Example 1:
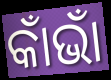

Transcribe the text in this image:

କାଁଭାଁ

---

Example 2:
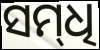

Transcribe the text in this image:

ସମ୍‌ଧି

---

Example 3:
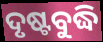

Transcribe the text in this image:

ଦୃଷ୍ଟବୁଦ୍ଧି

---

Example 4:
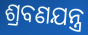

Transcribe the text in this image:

ଶ୍ରବଣଯନ୍ତ୍ର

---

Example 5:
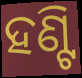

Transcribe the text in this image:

ହଣ୍ଟି